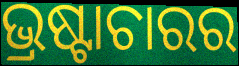
ଭ୍ରଷ୍ଟାଚାରର